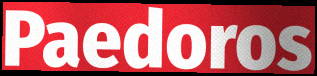
Paedoros